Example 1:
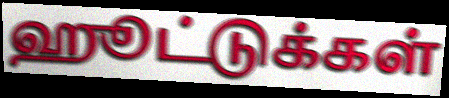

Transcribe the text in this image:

ஹூட்டுக்கள்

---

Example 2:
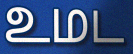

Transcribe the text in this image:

உமட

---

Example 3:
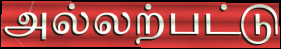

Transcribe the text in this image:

அல்லற்பட்டு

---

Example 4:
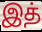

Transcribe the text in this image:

இத்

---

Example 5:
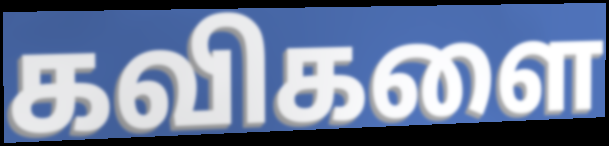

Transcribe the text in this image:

கவிகளை